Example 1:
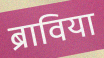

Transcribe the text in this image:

ब्राविया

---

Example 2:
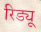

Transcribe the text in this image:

रिड्यू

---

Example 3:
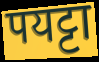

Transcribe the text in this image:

पयट्टा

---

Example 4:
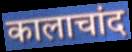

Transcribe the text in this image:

कालाचांद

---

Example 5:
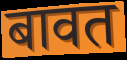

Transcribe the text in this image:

बावत